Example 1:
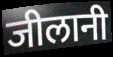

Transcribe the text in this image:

जीलानी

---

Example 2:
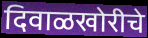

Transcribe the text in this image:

दिवाळखोरीचे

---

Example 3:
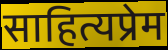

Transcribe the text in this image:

साहित्यप्रेम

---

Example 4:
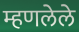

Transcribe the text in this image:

म्हणलेले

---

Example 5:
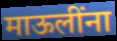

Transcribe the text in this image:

माऊलींना